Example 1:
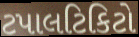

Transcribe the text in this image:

ટપાલટિકિટો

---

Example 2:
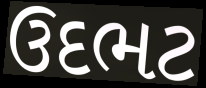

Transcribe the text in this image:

ઉદભટ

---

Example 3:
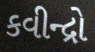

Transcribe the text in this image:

કવીન્દ્રો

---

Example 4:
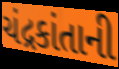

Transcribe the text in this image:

ચંદ્રકાંતાની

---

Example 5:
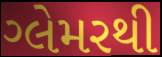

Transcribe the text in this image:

ગ્લેમરથી